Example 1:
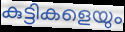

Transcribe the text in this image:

കുട്ടികളെയും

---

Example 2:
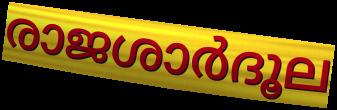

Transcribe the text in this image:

രാജശാർദൂല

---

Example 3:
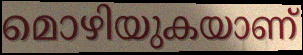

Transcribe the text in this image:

മൊഴിയുകയാണ്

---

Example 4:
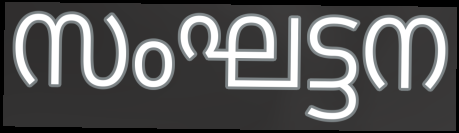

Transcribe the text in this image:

സംഘട്ടന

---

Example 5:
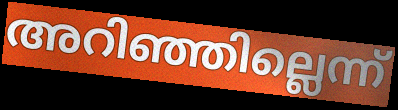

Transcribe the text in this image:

അറിഞ്ഞില്ലെന്ന്